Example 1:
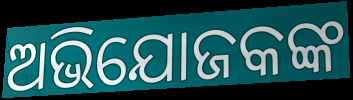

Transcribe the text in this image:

ଅଭିଯୋଜକଙ୍କ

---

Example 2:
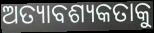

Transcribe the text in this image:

ଅତ୍ୟାବଶ୍ୟକତାକୁ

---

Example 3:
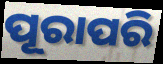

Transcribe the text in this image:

ପୂରାପରି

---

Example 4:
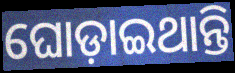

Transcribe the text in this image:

ଘୋଡ଼ାଇଥାନ୍ତି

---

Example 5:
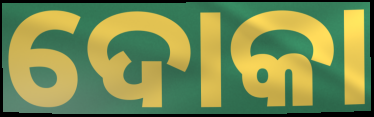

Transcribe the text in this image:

ଦୋକା